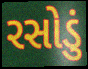
રસોડું